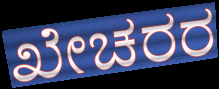
ಖೇಚರರ